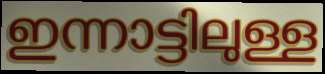
ഇന്നാട്ടിലുള്ള